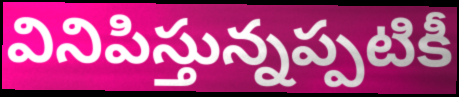
వినిపిస్తున్నప్పటికీ